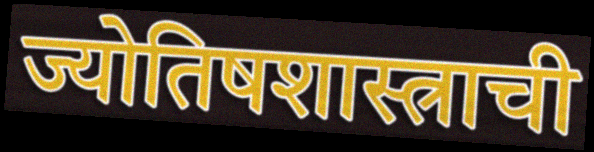
ज्योतिषशास्त्राची